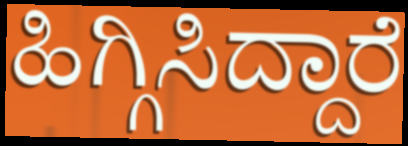
ಹಿಗ್ಗಿಸಿದ್ದಾರೆ